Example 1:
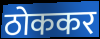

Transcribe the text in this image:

ठोककर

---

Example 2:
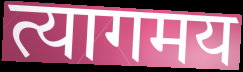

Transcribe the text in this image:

त्यागमय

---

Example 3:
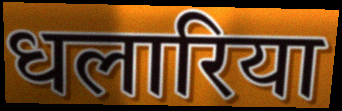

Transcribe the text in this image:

धलारिया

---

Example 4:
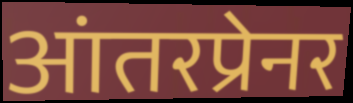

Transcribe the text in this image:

आंतरप्रेनर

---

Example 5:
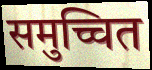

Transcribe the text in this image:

समुच्चित